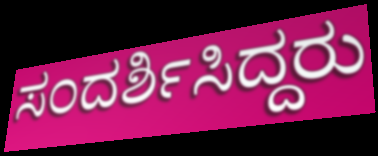
ಸಂದರ್ಶಿಸಿದ್ದರು